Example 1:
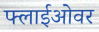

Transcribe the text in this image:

फ्लाईओवर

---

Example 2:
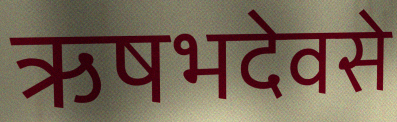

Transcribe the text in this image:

ऋषभदेवसे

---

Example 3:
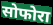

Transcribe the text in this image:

सोफोरा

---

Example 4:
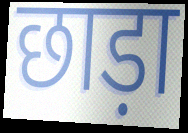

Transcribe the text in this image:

छाड़ा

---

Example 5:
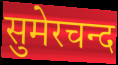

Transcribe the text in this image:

सुमेरचन्द